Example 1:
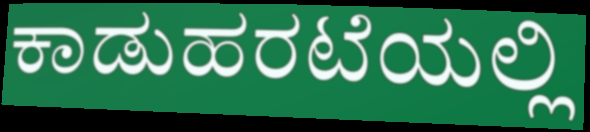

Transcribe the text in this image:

ಕಾಡುಹರಟೆಯಲ್ಲಿ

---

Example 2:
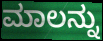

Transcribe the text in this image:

ಮಾಲನ್ನು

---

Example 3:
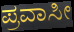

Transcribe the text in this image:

ಪ್ರವಾಸೀ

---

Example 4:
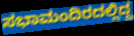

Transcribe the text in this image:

ಸಭಾಮಂದಿರದಲ್ಲಿದ್ದ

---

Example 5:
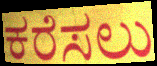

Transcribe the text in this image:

ಕರೆಸಲು